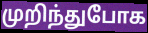
முறிந்துபோக